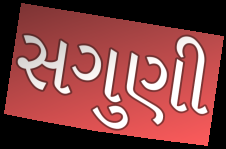
સગુણી